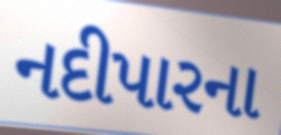
નદીપારના